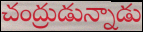
చంద్రుడున్నాడు